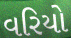
વરિયો